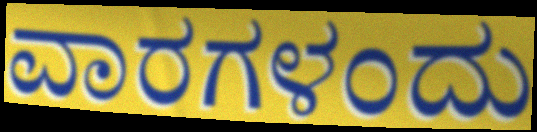
ವಾರಗಳಂದು